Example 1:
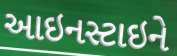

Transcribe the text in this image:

આઇનસ્ટાઇને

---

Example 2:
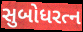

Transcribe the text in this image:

સુબોધરત્ન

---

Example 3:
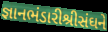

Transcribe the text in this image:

જ્ઞાનભંડારીશ્રીસંઘને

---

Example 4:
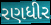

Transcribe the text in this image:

રણધીર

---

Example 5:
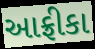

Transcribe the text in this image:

આફ્રીકા